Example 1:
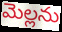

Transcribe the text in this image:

మెల్లను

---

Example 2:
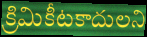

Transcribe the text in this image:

క్రిమికీటకాదులని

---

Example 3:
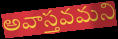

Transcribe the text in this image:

అవాస్తవమని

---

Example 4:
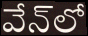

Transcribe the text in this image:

వేన్‌లో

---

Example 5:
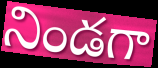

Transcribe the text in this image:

నిండగా